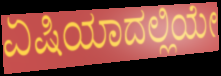
ಏಷಿಯಾದಲ್ಲಿಯೇ